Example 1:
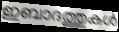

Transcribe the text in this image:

ഇബാദത്തുകൾ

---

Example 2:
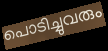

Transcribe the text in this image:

പൊടിച്ചുവരും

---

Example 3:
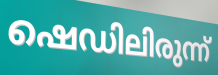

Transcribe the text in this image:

ഷെഡിലിരുന്ന്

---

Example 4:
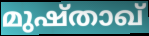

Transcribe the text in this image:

മുഷ്താഖ്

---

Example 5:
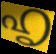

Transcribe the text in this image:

ഹൃ